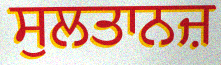
ਸੁਲਤਾਨਜ਼